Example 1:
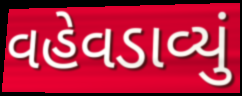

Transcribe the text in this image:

વહેવડાવ્યું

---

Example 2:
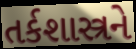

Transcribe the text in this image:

તર્કશાસ્ત્રને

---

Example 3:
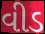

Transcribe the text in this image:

વીડ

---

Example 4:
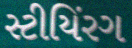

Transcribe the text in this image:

સ્ટીયિંરગ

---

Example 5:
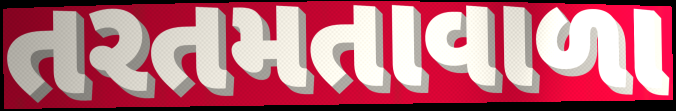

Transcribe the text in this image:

તરતમતાવાળા